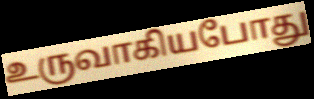
உருவாகியபோது